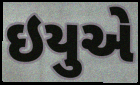
ઇયુએ